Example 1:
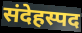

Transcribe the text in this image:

संदेहस्पद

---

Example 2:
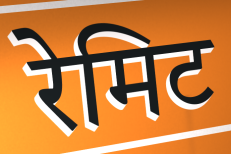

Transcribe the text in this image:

रेमिट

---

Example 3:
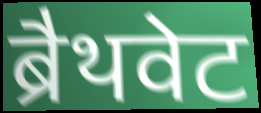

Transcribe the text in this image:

ब्रैथवेट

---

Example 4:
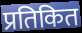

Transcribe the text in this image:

प्रतिकित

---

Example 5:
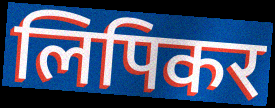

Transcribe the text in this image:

लिपिकर